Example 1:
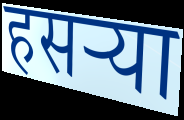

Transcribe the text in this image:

हसऱ्या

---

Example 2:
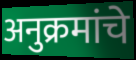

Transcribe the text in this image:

अनुक्रमांचे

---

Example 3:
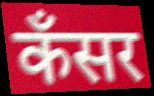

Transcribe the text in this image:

कँसर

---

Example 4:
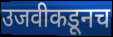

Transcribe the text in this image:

उजवीकडूनच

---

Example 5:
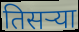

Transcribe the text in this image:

तिसऱ्या